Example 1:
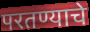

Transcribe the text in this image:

परतण्याचे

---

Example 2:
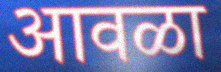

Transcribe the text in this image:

आवळा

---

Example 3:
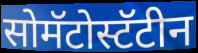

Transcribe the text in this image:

सोमॅटोस्टॅटीन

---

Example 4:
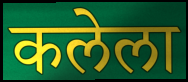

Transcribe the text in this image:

कलेला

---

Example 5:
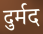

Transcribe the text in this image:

दुर्मद